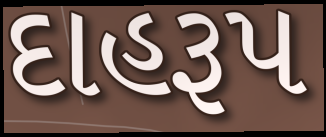
દાહરૂપ